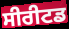
ਸੀਰੀਟਡ